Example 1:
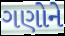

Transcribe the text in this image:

ગણોને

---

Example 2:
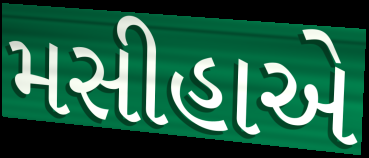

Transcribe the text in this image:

મસીહાએ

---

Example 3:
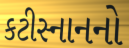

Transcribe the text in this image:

કટીસ્નાનનો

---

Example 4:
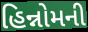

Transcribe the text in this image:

હિન્નોમની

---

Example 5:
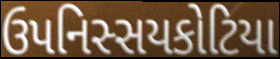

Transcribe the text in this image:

ઉપનિસ્સયકોટિયા